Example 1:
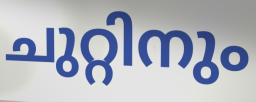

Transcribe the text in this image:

ചുറ്റിനും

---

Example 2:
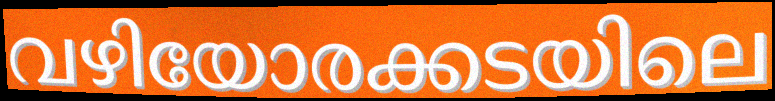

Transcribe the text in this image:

വഴിയോരക്കടയിലെ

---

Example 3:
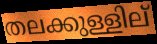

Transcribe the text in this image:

തലക്കുള്ളില്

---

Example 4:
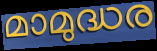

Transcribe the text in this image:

മാമുദ്ധര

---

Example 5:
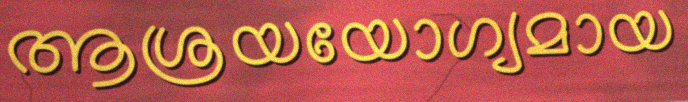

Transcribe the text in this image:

ആശ്രയയോഗ്യമായ